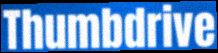
Thumbdrive